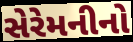
સેરેમનીનો